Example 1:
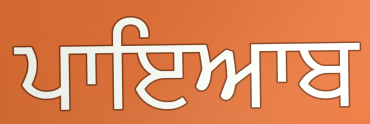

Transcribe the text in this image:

ਪਾਇਆਬ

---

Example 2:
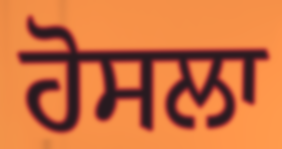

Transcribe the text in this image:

ਹੋਸਲਾ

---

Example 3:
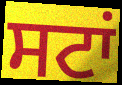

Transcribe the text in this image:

ਸਟਾਂ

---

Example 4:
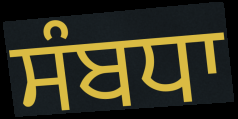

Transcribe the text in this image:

ਸੰਬਧਾ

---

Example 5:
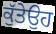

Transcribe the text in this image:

ਕੁੱਤੇਉਹ